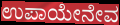
ಉಪಾಯೇನೇವ